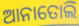
ଆନାତୋଲି